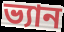
ভ্যান